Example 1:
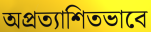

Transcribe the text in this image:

অপ্রত্যাশিতভাবে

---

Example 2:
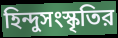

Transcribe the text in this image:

হিন্দুসংস্কৃতির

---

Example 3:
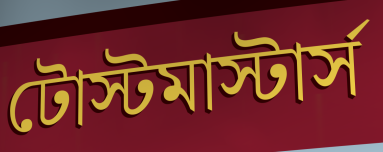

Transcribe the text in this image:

টোস্টমাস্টার্স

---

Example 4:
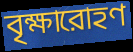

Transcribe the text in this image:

বৃক্ষারোহণ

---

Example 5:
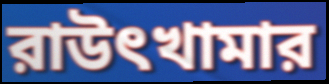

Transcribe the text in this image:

রাউৎখামার